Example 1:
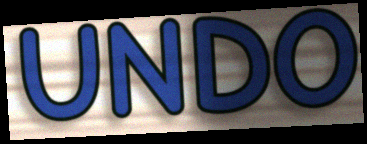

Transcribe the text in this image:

UNDO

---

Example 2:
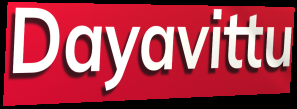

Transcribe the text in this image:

Dayavittu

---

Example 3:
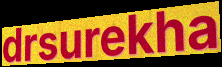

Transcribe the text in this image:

drsurekha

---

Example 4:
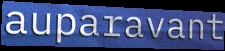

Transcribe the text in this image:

auparavant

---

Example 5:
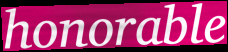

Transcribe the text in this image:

honorable